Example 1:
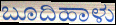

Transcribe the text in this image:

ಬೂದಿಹಾಳು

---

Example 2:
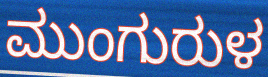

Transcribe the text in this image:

ಮುಂಗುರುಳ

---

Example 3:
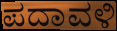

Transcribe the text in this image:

ಪದಾವಳಿ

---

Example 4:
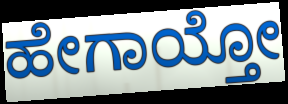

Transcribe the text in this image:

ಹೇಗಾಯ್ತೋ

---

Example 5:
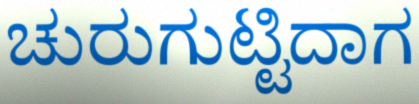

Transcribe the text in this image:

ಚುರುಗುಟ್ಟಿದಾಗ